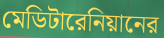
মেডিটারেনিয়ানের